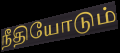
நீதியோடும்